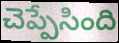
చెప్పేసింది